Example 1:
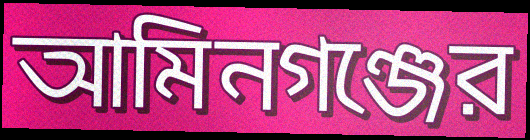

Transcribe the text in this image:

আমিনগঞ্জের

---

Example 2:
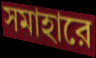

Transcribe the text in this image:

সমাহারে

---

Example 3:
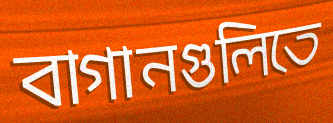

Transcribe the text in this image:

বাগানগুলিতে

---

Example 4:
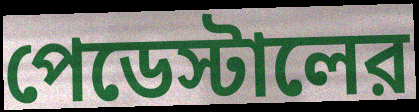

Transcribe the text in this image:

পেডেস্টালের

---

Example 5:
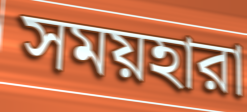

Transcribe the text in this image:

সময়হারা